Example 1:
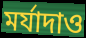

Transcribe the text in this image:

মর্যাদাও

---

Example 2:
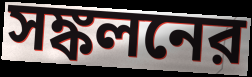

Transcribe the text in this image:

সঙ্কলনের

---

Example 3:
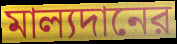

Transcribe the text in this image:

মাল্যদানের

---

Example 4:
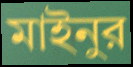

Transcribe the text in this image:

মাইনুর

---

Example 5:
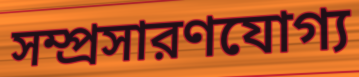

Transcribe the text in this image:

সম্প্রসারণযোগ্য